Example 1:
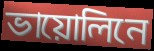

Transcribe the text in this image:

ভায়োলিনে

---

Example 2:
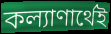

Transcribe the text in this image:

কল্যাণার্থেই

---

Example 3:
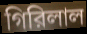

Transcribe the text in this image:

গিরিলাল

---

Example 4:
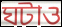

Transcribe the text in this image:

ঘটাও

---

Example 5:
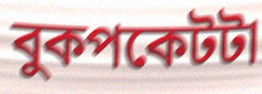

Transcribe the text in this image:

বুকপকেটটা